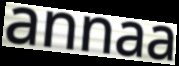
annaa